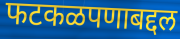
फटकळपणाबद्दल